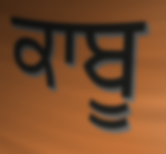
ਕਾਬੂ